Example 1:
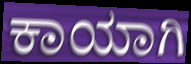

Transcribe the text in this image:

ಕಾಯಾಗಿ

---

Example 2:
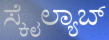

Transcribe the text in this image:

ಸ್ಕೈಲ್ಯಾಬ್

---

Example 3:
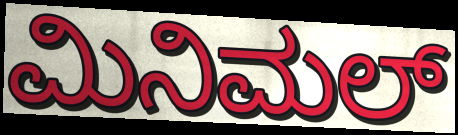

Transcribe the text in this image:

ಮಿನಿಮಲ್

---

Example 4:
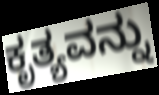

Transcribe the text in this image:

ಕೃತ್ಯವನ್ನು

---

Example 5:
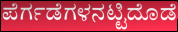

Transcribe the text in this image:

ಪೆರ್ಗಡೆಗಳನಟ್ಟಿದೊಡೆ